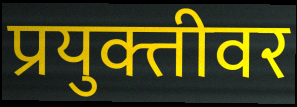
प्रयुक्तीवर